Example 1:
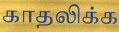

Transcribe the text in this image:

காதலிக்க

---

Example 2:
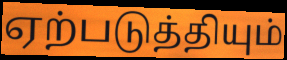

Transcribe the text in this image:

ஏற்படுத்தியும்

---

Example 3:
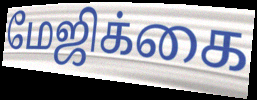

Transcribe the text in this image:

மேஜிக்கை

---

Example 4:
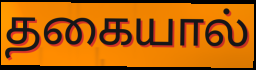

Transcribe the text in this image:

தகையால்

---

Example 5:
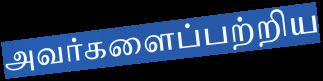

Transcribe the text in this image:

அவர்களைப்பற்றிய